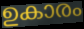
ഉകാരം